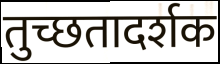
तुच्छतादर्शक